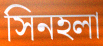
সিনহলা